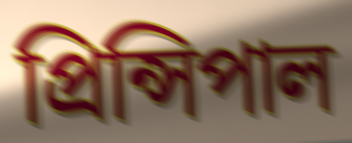
প্রিন্সিপাল